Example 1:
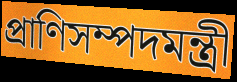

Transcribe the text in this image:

প্রাণিসম্পদমন্ত্রী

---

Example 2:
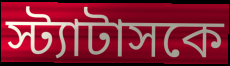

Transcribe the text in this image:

স্ট্যাটাসকে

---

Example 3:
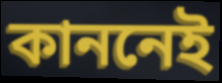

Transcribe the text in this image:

কাননেই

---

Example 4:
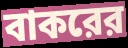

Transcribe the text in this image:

বাকরের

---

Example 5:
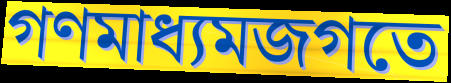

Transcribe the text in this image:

গণমাধ্যমজগতে